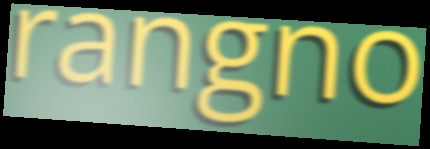
rangno